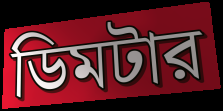
ডিমটার